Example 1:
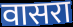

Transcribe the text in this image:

वासरा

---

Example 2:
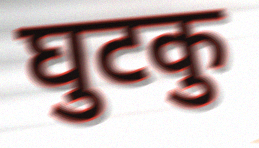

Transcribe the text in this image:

घुटकु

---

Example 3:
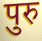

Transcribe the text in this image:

पुरु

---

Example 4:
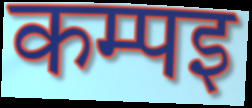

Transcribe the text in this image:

कम्पइ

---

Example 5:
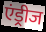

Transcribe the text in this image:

एंड्रीज